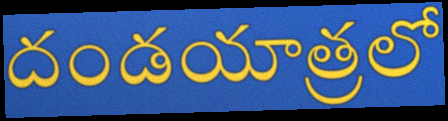
దండయాత్రలో